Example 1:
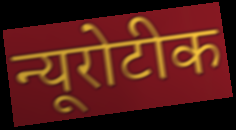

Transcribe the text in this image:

न्यूरोटीक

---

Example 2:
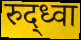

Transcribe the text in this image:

रुद्ध्वा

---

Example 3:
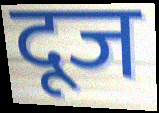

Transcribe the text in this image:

दूज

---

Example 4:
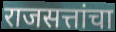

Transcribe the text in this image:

राजसत्तांचा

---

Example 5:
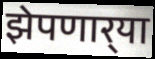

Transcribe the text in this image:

झेपणार्‍या